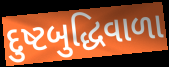
દુષ્ટબુદ્ધિવાળા